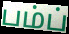
பம்ப்